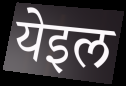
येइल